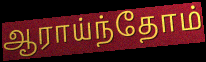
ஆராய்ந்தோம்